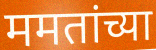
ममतांच्या